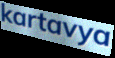
kartavya